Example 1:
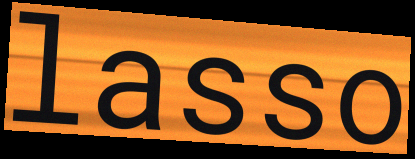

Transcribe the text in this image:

lasso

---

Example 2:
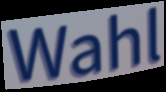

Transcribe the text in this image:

Wahl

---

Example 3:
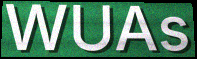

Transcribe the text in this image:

WUAs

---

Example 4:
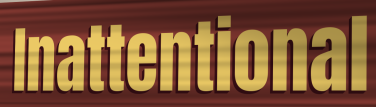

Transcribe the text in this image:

Inattentional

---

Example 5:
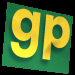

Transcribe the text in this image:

gp